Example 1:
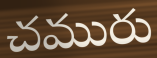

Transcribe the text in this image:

చమురు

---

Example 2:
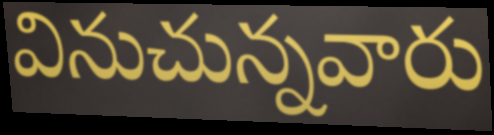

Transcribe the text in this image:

వినుచున్నవారు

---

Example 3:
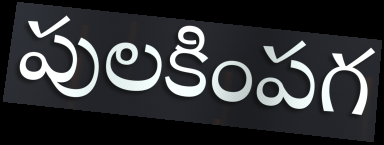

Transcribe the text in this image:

పులకింపగ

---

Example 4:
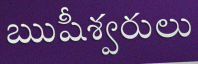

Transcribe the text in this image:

ఋషీశ్వరులు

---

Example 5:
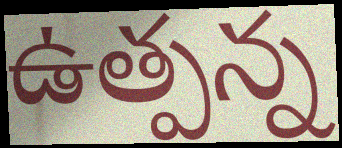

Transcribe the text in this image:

ఉత్పన్న